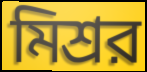
মিশ্রর